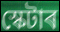
স্কেটাৰ